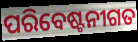
ପରିବେଷ୍ଟନୀଗତ